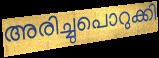
അരിച്ചുപൊറുക്കി